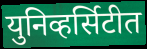
युनिव्हर्सिटीत